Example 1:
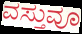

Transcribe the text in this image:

ವಸ್ತುವೂ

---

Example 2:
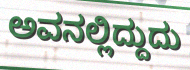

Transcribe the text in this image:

ಅವನಲ್ಲಿದ್ದುದು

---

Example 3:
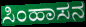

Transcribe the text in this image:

ಸಿಂಹಾಸನ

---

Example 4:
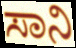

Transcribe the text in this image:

ಸಾನಿ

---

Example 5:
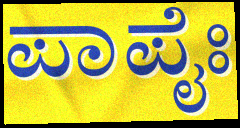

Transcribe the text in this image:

ಪಾಪೈಃ